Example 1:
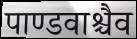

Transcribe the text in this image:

पाण्डवाश्चैव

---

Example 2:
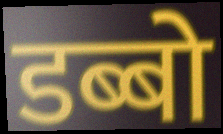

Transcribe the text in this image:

डब्बो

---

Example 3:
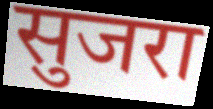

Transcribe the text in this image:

सुजरा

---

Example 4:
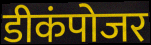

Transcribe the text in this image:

डीकंपोजर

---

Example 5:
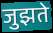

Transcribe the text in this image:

जुझते